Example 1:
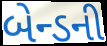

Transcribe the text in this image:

બેન્ડની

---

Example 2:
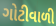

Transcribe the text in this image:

ગોટીવાળી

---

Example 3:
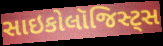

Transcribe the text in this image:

સાઇકોલૉજિસ્ટ્સ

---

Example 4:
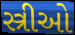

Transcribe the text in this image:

સ્ત્રીઓ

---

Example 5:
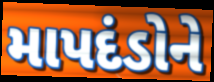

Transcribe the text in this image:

માપદંડોને